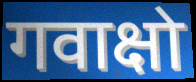
गवाक्षो